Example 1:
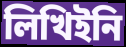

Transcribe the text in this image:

লিখিইনি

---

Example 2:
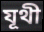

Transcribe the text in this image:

যূথী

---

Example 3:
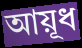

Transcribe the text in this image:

আয়ূধ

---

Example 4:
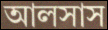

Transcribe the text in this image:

আলসাস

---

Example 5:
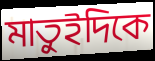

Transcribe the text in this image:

মাতুইদিকে